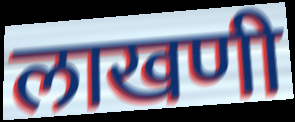
लाखणी